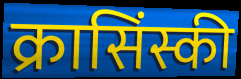
क्रासिंस्की